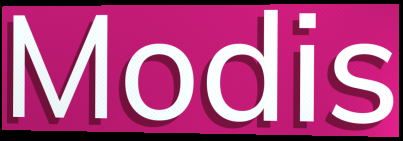
Modis